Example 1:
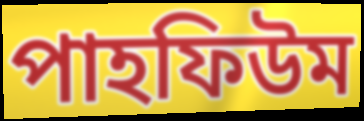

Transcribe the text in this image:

পাহফিউম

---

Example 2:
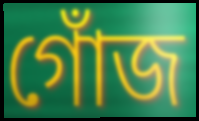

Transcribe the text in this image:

গোঁজ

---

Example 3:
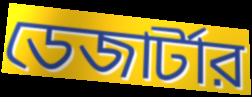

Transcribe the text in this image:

ডেজার্টার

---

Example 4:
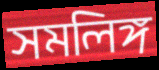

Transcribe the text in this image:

সমলিঙ্গ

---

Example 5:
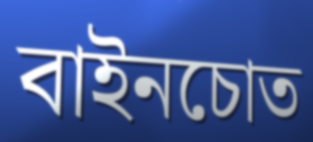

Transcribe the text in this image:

বাইনচোত